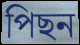
পিছন